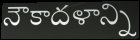
నౌకాదళాన్ని